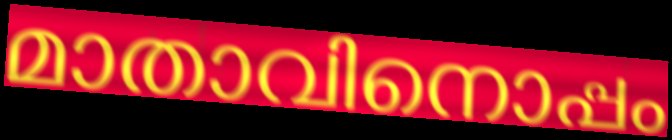
മാതാവിനൊപ്പം